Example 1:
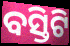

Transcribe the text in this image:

ବସ୍ତିଟି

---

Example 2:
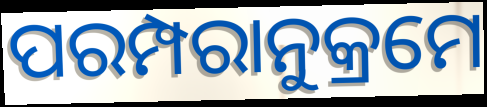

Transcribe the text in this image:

ପରମ୍ପରାନୁକ୍ରମେ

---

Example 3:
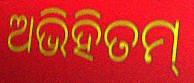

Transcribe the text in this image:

ଅଭିହିତମ୍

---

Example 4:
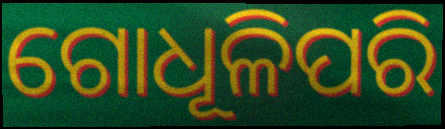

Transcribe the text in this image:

ଗୋଧୂଳିପରି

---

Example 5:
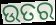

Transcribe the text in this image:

ଉତର